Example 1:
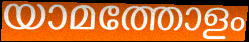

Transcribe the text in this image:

യാമത്തോളം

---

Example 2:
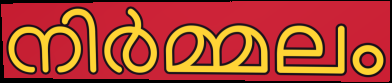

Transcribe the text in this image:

നിർമ്മലം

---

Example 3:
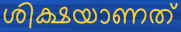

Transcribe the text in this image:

ശിക്ഷയാണത്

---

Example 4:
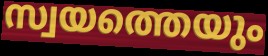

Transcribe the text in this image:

സ്വയത്തെയും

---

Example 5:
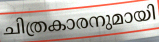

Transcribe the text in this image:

ചിത്രകാരനുമായി